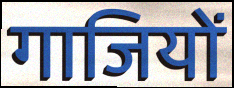
गाजियों